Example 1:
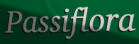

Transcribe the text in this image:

Passiflora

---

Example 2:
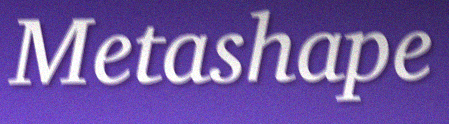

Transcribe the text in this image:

Metashape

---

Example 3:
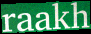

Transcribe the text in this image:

raakh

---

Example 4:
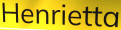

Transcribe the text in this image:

Henrietta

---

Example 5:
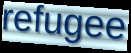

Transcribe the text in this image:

refugee